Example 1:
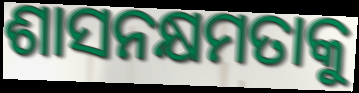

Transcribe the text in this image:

ଶାସନକ୍ଷମତାକୁ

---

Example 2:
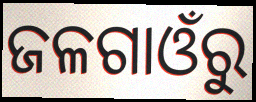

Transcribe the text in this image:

ଜଳଗାଓଁରୁ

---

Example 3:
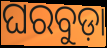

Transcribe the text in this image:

ଘରବୁଡ଼ା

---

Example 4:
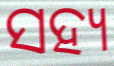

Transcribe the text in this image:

ସହ୍ଯ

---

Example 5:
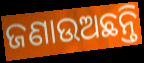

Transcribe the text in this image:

ଜଣାଉଅଛନ୍ତି